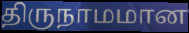
திருநாமமான